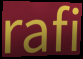
rafi